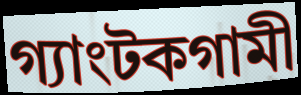
গ্যাংটকগামী